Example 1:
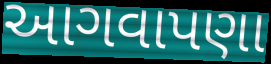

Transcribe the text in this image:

આગવાપણા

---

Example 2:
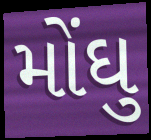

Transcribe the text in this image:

મોંઘુ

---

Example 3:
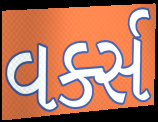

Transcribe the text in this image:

વર્ક્સ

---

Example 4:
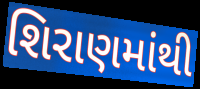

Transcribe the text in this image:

શિરાણમાંથી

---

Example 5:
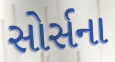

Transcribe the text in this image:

સોર્સના